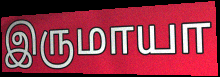
இருமாயா